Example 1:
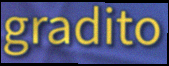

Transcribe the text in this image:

gradito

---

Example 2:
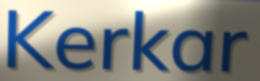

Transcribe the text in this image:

Kerkar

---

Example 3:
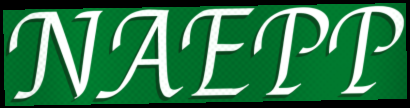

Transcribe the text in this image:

NAEPP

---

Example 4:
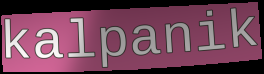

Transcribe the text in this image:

kalpanik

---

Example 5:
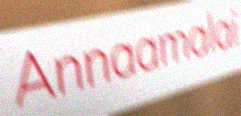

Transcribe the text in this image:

Annaamalai